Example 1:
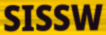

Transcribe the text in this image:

SISSW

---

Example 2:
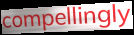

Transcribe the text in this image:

compellingly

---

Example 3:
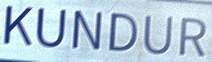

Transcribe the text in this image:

KUNDUR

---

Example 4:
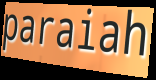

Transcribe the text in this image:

paraiah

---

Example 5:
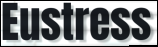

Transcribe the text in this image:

Eustress